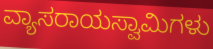
ವ್ಯಾಸರಾಯಸ್ವಾಮಿಗಳು